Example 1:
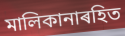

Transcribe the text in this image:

মালিকানাৰহিত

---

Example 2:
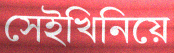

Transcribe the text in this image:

সেইখিনিয়ে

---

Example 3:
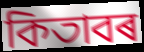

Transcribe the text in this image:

কিতাবৰ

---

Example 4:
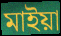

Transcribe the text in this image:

মাইয়া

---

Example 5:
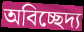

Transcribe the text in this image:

অবিচ্ছেদ্য